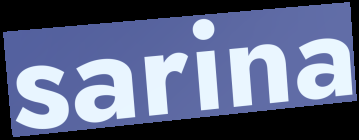
sarina